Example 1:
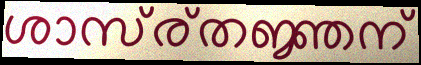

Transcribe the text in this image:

ശാസ്ര്തജ്ഞന്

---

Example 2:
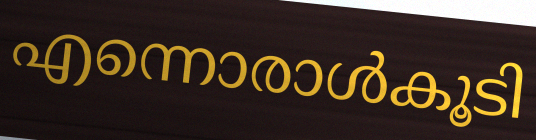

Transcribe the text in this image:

എന്നൊരാൾകൂടി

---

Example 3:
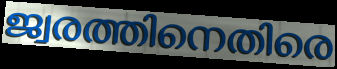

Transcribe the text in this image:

ജ്വരത്തിനെതിരെ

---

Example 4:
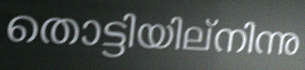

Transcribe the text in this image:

തൊട്ടിയില്നിന്നു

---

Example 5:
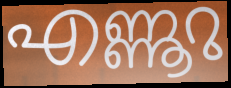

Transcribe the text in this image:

എണ്ണൂറു